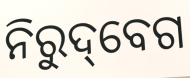
ନିରୁଦ୍‌ବେଗ